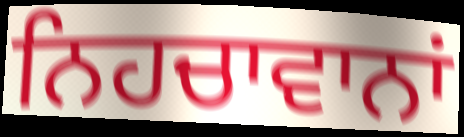
ਨਿਹਚਾਵਾਨਾਂ